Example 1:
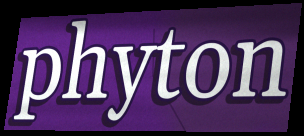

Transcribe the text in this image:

phyton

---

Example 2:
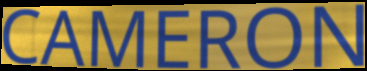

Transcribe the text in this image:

CAMERON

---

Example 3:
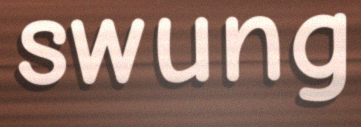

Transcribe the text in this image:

swung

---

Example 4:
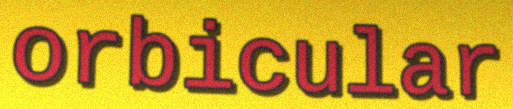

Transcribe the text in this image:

orbicular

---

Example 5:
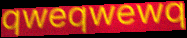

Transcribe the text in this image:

qweqwewq